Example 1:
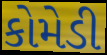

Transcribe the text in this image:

કોમેડી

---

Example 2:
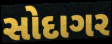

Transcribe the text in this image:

સોદાગર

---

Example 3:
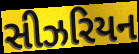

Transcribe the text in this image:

સીઝરિયન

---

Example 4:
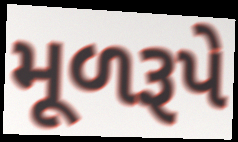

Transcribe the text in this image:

મૂળરૂપે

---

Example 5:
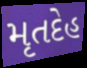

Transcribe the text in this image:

મૃતદેહ